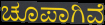
ಚೂಪಾಗಿವೆ